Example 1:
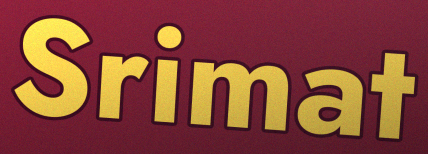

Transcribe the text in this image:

Srimat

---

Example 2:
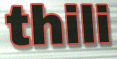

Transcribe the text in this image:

thili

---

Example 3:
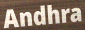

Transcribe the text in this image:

Andhra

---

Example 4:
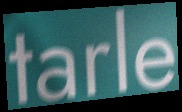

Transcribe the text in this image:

tarle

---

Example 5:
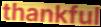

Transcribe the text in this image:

thankful